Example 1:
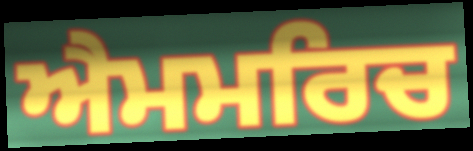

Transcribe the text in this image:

ਐਮਮਰਿਚ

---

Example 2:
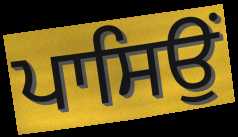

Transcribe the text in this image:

ਪਾਸਿਉਂ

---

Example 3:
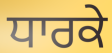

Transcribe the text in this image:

ਧਾਰਕੇ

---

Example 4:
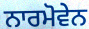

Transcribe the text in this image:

ਨਾਰਮੋਵੇਨ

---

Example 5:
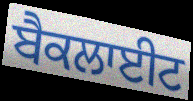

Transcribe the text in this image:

ਬੈਕਲਾਈਟ